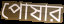
পোষার